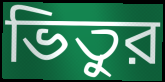
ভিতুর